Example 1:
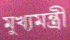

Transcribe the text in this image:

মুখ্যমন্ত্ৰী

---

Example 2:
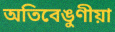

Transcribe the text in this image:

অতিবেঙুণীয়া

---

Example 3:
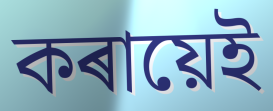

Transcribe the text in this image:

কৰায়েই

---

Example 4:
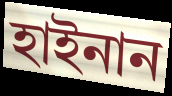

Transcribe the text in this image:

হাইনান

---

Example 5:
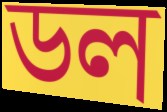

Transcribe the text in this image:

ডল